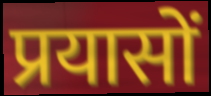
प्रयासों